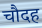
चौदह